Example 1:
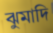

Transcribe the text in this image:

ঝুমাদি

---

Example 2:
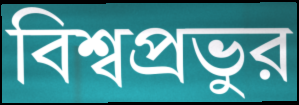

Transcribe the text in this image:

বিশ্বপ্রভুর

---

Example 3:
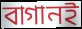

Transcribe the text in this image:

বাগানই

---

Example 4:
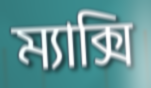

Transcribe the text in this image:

ম্যাক্সি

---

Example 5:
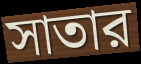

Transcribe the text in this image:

সাতার